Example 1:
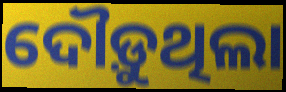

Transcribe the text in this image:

ଦୌଡ଼ୁଥିଲା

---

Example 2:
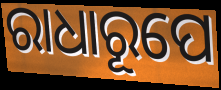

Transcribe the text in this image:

ରାଧାରୂପେ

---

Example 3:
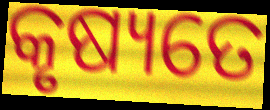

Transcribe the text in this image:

କୃଷ୍ୟତେ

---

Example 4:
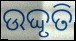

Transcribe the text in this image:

ଉଦ୍ଦୃତି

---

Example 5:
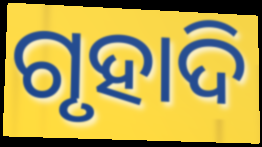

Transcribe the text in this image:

ଗୃହାଦି